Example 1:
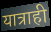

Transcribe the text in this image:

यात्राही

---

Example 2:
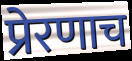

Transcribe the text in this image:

प्रेरणाच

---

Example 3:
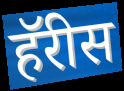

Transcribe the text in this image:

हॅरीस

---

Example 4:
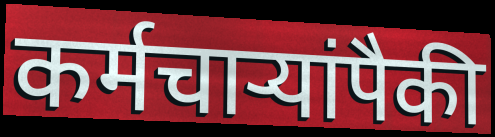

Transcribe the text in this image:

कर्मचार्‍यांपैकी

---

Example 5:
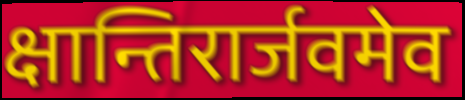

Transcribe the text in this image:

क्षान्तिरार्जवमेव